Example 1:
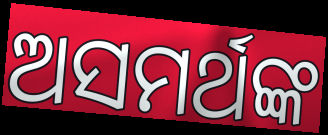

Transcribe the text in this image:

ଅସମର୍ଥଙ୍କ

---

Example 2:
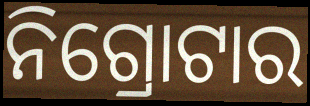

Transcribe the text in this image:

ନିଗ୍ରୋଟାର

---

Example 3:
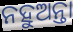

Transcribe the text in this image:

ନହୁଅନ୍ତା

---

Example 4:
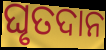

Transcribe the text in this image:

ଘୃତଦାନ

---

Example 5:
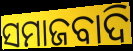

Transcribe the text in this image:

ସମାଜବାଦି